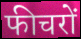
फीचरों